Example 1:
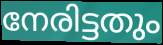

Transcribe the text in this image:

നേരിട്ടതും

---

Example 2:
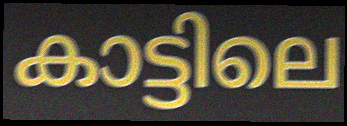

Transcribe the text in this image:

കാട്ടിലെ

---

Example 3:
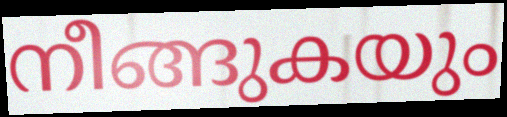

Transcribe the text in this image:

നീങ്ങുകയും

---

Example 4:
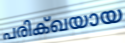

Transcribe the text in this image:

പരിക്ഖയായ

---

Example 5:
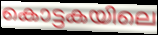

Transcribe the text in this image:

കൊട്ടകയിലെ